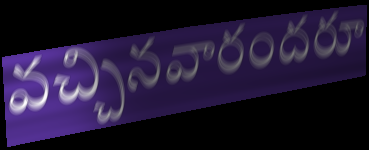
వచ్చినవారందరూ